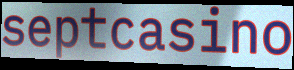
septcasino